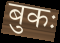
बुकः